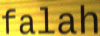
falah